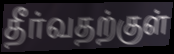
தீர்வதற்குள்